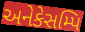
અનેકેસમ્પિ